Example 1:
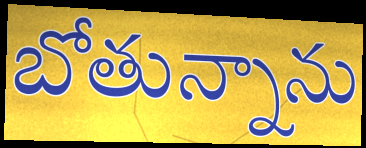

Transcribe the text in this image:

బోతున్నాను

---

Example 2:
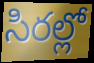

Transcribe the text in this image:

సిరల్లో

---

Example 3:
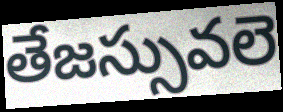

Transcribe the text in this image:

తేజస్సువలె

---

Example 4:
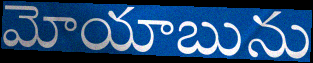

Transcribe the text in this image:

మోయాబును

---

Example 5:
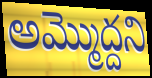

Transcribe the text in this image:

అమ్మొద్దని